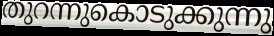
തുറന്നുകൊടുക്കുന്നു